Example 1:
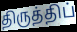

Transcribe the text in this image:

திருத்திப்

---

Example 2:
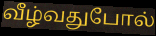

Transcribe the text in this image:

வீழ்வதுபோல்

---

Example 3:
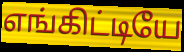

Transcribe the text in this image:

எங்கிட்டியே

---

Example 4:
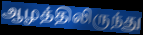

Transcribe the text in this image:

ஆழத்திலிருந்து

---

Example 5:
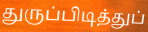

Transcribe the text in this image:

துருப்பிடித்துப்